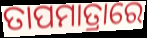
ତାପମାତ୍ରାରେ